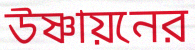
উষ্ণায়নের